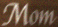
Mom